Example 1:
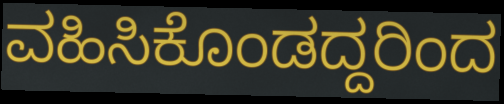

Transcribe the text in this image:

ವಹಿಸಿಕೊಂಡದ್ದರಿಂದ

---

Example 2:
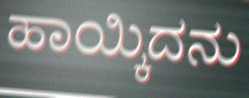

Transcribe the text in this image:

ಹಾಯ್ಕಿದನು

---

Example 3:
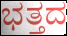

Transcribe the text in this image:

ಭತ್ತದ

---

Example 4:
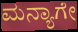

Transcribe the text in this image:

ಮನ್ಯಾಗೇ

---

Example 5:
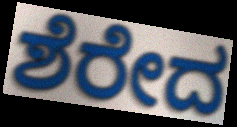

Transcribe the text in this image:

ಶೆರೇದ